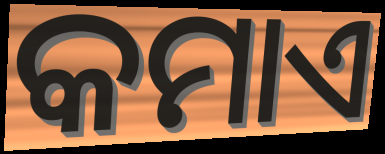
କମାଏ